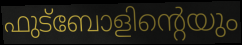
ഫുട്ബോളിന്റെയും